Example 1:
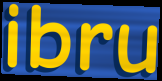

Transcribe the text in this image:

ibru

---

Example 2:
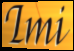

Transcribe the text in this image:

Imi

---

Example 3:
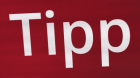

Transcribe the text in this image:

Tipp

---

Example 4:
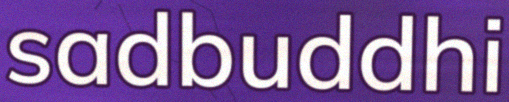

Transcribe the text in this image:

sadbuddhi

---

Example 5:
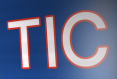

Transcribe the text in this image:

TIC